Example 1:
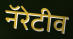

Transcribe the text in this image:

नॅरेटीव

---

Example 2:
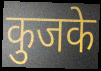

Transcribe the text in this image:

कुजके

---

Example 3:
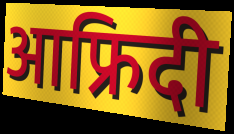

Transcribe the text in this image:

आफ्रिदी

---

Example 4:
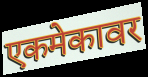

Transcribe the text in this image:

एकमेकावर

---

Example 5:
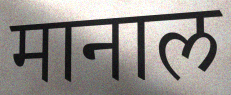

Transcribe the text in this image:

मानाल